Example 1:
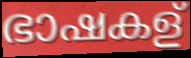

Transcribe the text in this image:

ഭാഷകള്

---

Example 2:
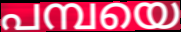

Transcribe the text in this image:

പമ്പയെ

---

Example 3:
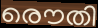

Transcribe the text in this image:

രൌതി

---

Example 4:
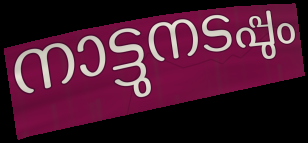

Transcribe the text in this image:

നാട്ടുനടപ്പും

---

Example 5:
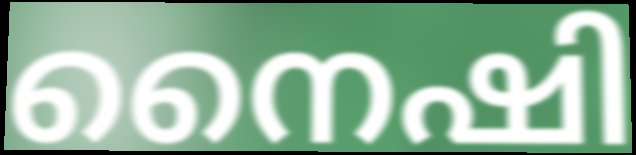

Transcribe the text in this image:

നൈഷി